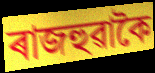
ৰাজহুৱাকৈ